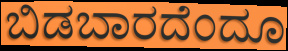
ಬಿಡಬಾರದೆಂದೂ